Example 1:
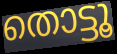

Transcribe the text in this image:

തൊട്ടൂ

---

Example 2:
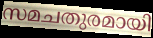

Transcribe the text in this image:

സമചതുരമായി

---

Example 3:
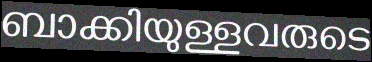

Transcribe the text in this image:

ബാക്കിയുള്ളവരുടെ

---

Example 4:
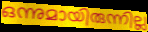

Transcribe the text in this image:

ഒന്നുമായിരുന്നില്ല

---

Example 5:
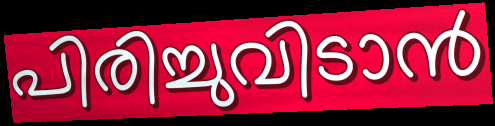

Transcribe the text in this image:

പിരിച്ചുവിടാൻ